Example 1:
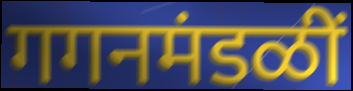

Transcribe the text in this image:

गगनमंडळीं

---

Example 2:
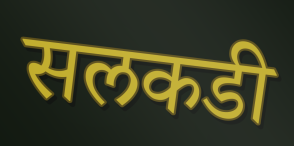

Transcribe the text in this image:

सलकडी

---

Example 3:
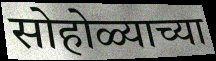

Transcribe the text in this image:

सोहोळ्याच्या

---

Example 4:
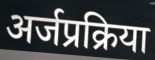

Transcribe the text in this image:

अर्जप्रक्रिया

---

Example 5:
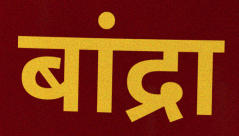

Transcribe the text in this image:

बांद्रा